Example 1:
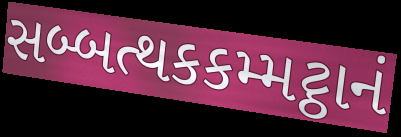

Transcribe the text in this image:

સબ્બત્થકકમ્મટ્ઠાનં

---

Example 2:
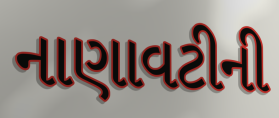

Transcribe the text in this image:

નાણાવટીની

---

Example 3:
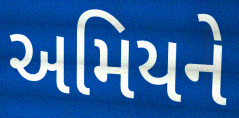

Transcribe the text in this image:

અમિયને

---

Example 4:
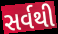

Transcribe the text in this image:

સર્વથી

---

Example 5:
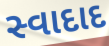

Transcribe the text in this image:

સ્વાદાદ